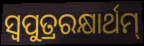
ସ୍ଵପୁତ୍ରରକ୍ଷାର୍ଥମ୍